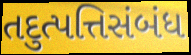
તદુત્પત્તિસંબંધ